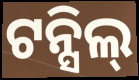
ଟନ୍ସିଲ୍